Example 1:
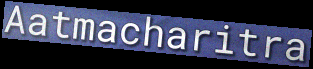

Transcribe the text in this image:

Aatmacharitra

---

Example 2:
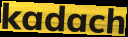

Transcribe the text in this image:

kadach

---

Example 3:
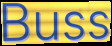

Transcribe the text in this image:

Buss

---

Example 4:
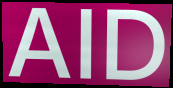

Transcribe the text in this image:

AID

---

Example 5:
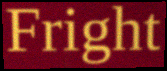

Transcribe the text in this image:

Fright